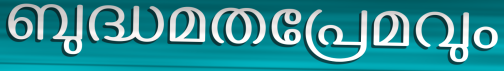
ബുദ്ധമതപ്രേമവും